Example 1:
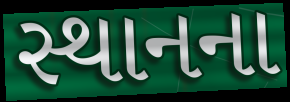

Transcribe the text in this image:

સ્થાનના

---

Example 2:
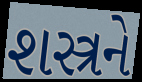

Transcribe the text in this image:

શસ્ત્રને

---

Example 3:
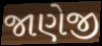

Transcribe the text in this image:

જાણેજી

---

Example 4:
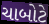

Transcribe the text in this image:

ચાબોટે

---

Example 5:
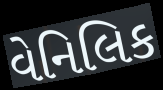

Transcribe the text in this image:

વેનિલિક